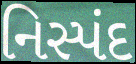
નિસ્પંદ